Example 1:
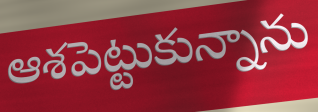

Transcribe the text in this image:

ఆశపెట్టుకున్నాను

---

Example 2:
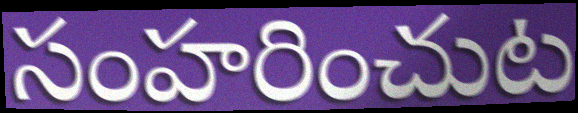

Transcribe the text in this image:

సంహరించుట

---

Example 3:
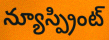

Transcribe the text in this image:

న్యూస్ప్రింట్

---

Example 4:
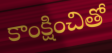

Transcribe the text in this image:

కాంక్షించితో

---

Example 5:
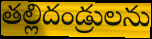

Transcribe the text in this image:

తల్లిదండ్రులను